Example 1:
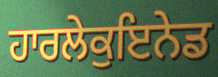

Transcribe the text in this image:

ਹਾਰਲੇਕੁਇਨੇਡ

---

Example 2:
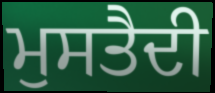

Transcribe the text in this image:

ਮੁਸਤੈਦੀ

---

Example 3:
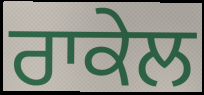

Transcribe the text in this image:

ਰਾਕੇਲ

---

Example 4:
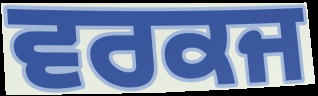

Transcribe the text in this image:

ਵਰਕਜ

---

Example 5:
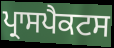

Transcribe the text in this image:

ਪ੍ਰਾਸਪੈਕਟਸ